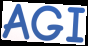
AGI